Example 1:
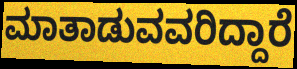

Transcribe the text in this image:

ಮಾತಾಡುವವರಿದ್ದಾರೆ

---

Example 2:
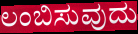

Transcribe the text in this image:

ಲಂಬಿಸುವುದು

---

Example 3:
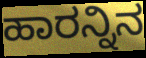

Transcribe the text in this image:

ಹಾರನ್ನಿನ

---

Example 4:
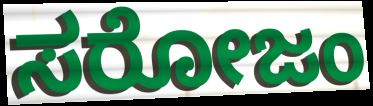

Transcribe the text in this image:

ಸರೋಜಂ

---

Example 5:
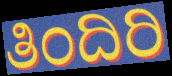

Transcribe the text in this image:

ತಿಂದಿರಿ